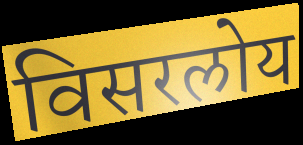
विसरलोय